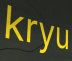
kryu